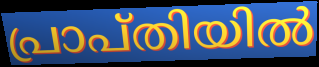
പ്രാപ്തിയിൽ